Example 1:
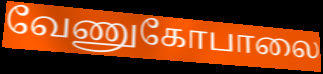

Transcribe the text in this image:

வேணுகோபாலை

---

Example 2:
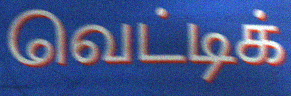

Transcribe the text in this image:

வெட்டிக்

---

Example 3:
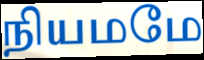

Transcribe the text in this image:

நியமமே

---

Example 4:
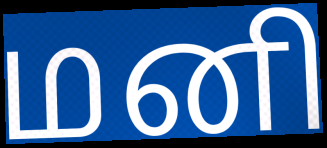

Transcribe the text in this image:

மனி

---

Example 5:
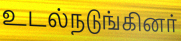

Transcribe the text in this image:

உடல்நடுங்கினர்